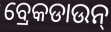
ବ୍ରେକଡାଉନ୍